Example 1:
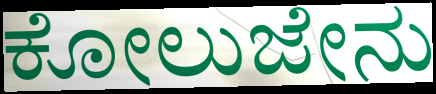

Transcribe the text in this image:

ಕೋಲುಜೇನು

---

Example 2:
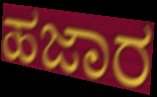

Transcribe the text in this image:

ಹಜಾರ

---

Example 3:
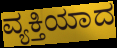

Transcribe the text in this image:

ವ್ಯಕ್ತಿಯಾದ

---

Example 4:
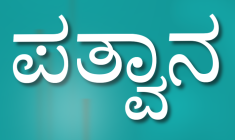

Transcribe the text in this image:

ಪತ್ವಾನ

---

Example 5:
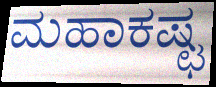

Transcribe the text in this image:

ಮಹಾಕಷ್ಟ